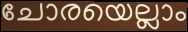
ചോരയെല്ലാം